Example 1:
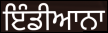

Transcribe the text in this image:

ਇੰਡੀਆਨਾ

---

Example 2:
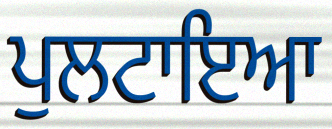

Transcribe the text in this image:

ਪੁਲਟਾਇਆ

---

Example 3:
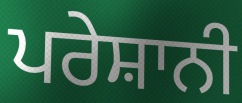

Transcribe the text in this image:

ਪਰੇਸ਼ਾਨੀ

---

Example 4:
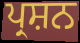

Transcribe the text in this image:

ਪ੍ਰਸ਼ਨ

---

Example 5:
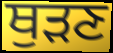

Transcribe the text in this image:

ਥੁੜਣ